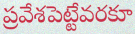
ప్రవేశపెట్టేవరకూ